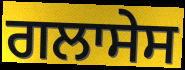
ਗਲਾਸੇਸ